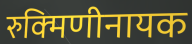
रुक्मिणीनायक